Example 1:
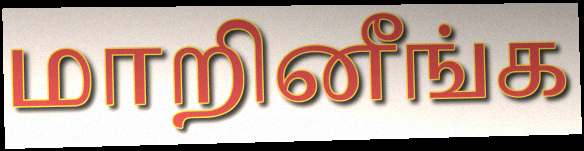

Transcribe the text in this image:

மாறினீங்க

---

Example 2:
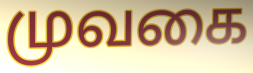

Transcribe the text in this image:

முவகை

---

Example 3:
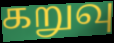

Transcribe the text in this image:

கறுவு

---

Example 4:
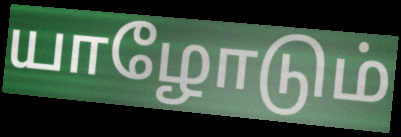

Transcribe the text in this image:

யாழோடும்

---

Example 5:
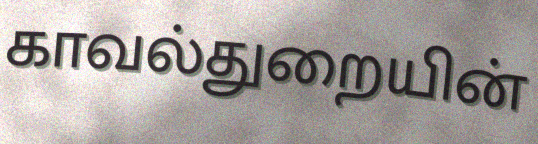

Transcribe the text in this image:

காவல்துறையின்